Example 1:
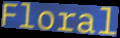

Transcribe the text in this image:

Floral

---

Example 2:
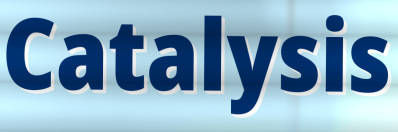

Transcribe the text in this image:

Catalysis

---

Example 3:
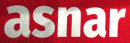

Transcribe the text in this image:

asnar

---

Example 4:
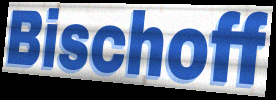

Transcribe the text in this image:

Bischoff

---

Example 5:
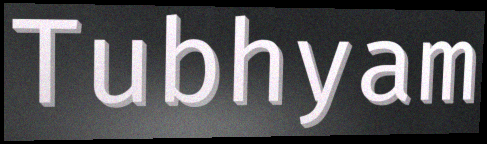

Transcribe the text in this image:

Tubhyam